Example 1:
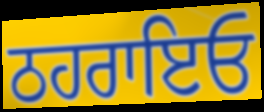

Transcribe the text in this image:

ਠਹਰਾਇਓ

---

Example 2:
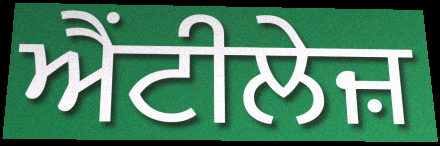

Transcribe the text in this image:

ਐਂਟੀਲੇਜ਼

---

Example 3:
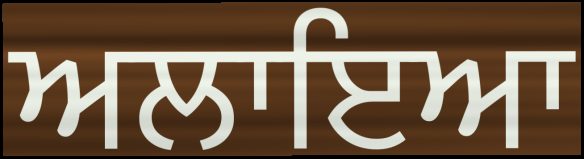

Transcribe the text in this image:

ਅਲਾਇਆ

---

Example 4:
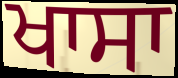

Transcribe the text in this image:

ਖਾਸਾ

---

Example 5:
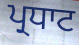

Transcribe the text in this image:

ਪ੍ਰਧਾਟ